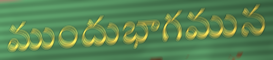
ముందుభాగమున